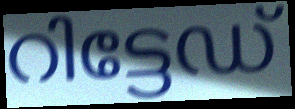
റിട്ടേഡ്